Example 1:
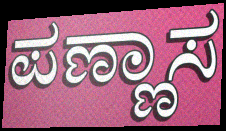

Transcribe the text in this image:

ಪಣ್ಣಾಸ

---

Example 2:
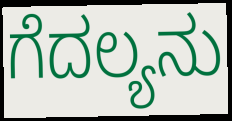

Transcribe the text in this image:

ಗೆದಲ್ಯನು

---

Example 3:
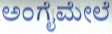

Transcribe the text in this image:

ಅಂಗೈಮೇಲೆ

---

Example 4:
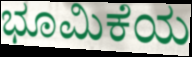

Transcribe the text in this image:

ಭೂಮಿಕೆಯ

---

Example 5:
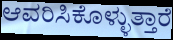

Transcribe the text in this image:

ಆವರಿಸಿಕೊಳ್ಳುತ್ತಾರೆ